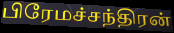
பிரேமச்சந்திரன்